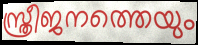
സ്ത്രീജനത്തെയും